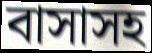
বাসাসহ